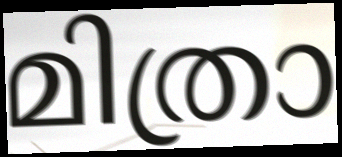
മിത്രാ